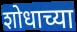
शोधाच्या